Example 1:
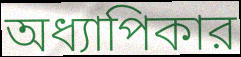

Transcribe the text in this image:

অধ্যাপিকার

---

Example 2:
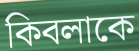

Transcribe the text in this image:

কিবলাকে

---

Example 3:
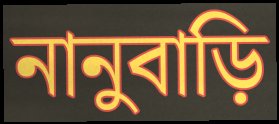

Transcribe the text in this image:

নানুবাড়ি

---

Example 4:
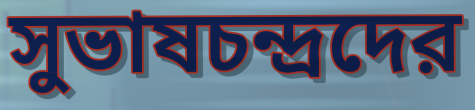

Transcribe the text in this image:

সুভাষচন্দ্রদের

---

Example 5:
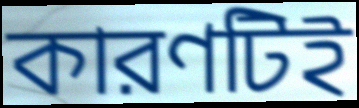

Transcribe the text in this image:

কারণটিই